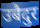
उबैदुर